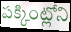
పక్కింట్లోని